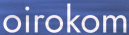
oirokom